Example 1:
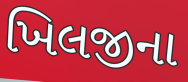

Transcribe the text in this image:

ખિલજીના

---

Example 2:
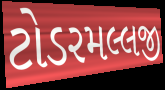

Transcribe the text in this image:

ટોડરમલ્લજી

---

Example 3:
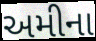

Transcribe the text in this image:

અમીના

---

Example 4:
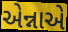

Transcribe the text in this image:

એન્નાએ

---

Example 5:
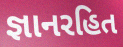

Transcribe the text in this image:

જ્ઞાનરહિત